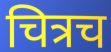
चित्रच